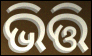
ଭିତ୍ତି